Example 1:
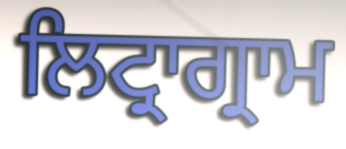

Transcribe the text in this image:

ਲਿਟ੍ਰਾਗ੍ਰਾਮ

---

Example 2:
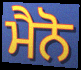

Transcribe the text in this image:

ਮੈਨੋ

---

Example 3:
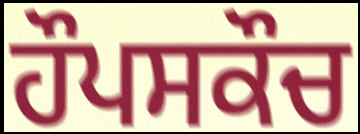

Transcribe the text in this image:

ਹੌਪਸਕੌਚ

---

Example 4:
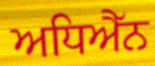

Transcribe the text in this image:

ਅਧਿਐੱਨ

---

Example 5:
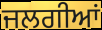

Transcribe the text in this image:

ਜਲਗੀਆਂ